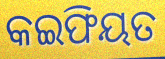
କଇଫିୟତ